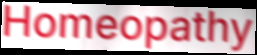
Homeopathy